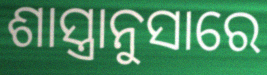
ଶାସ୍ତ୍ରାନୁସାରେ